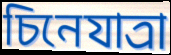
চিনেযাত্ৰা